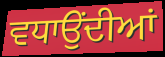
ਵਧਾਉਂਦੀਆਂ